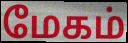
மேகம்